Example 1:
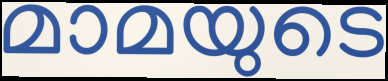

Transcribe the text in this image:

മാമയുടെ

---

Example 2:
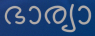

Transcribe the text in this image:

ഭാര്യാ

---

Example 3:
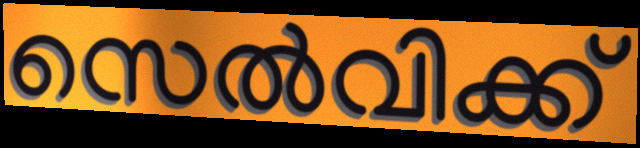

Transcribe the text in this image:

സെൽവിക്ക്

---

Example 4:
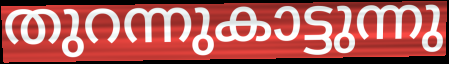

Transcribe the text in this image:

തുറന്നുകാട്ടുന്നു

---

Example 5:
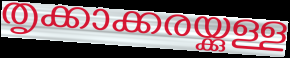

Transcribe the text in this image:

തൃക്കാക്കരയ്ക്കുള്ള